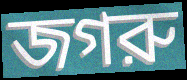
জগরু